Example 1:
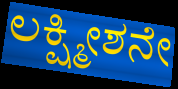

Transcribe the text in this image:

ಲಕ್ಷ್ಮೀಶನೇ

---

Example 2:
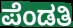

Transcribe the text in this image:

ಪೆಂಡತಿ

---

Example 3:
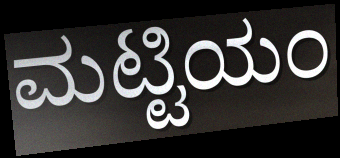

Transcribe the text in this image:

ಮಟ್ಟಿಯಂ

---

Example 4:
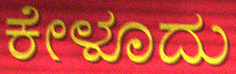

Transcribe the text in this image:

ಕೇಳೂದು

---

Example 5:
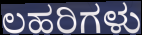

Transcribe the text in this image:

ಲಹರಿಗಳು